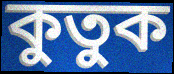
কুতুক